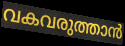
വകവരുത്താൻ